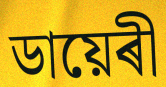
ডায়েৰী